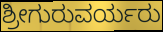
ಶ್ರೀಗುರುವರ್ಯರು